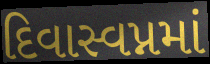
દિવાસ્વપ્નમાં